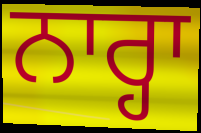
ਨਾਰ੍ਹਾ